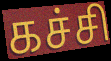
கச்சி